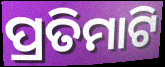
ପ୍ରତିମାଟି